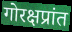
गोरक्षप्रांत